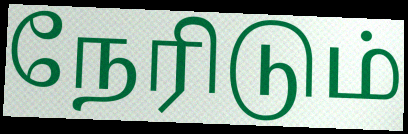
நேரிடும்